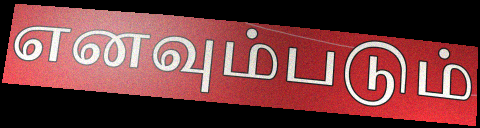
எனவும்படும்